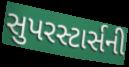
સુપરસ્ટાર્સની